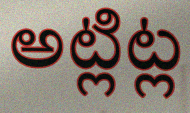
అట్లిట్ల